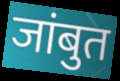
जांबुत